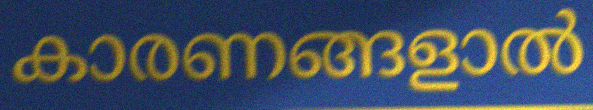
കാരണങ്ങളാൽ